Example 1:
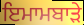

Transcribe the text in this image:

ਇਮਾਮਬਾੜੇ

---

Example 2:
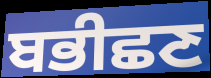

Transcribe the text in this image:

ਬਭੀਛਣ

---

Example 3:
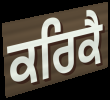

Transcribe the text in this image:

ਕਰਿਕੈ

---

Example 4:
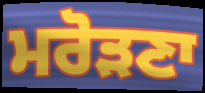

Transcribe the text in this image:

ਮਰੋੜਣਾ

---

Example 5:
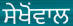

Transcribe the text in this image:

ਸੇਖੋਂਵਾਲ